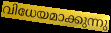
വിധേയമാക്കുന്നു